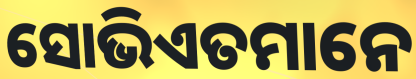
ସୋଭିଏତମାନେ